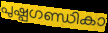
പുഷ്പഗണ്ഡികാ